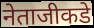
नेताजीकडे